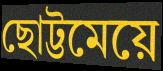
ছোট্টমেয়ে